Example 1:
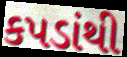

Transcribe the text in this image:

કપડાંથી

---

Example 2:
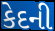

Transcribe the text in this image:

કેદની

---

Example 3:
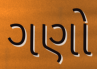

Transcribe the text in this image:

ગણો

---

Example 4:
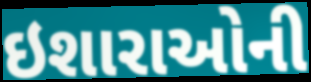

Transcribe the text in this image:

ઇશારાઓની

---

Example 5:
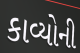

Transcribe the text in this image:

કાવ્યોની